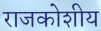
राजकोशीय